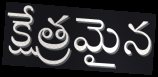
క్షేత్రమైన